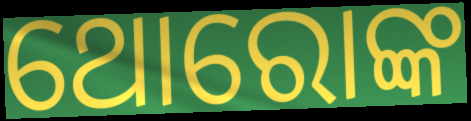
ଥୋରୋଙ୍କ